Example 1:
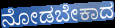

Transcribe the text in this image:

ನೋಡಬೇಕಾದ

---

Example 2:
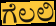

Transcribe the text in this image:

ಗೆಲಲಿ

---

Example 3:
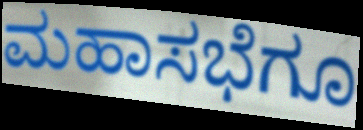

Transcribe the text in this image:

ಮಹಾಸಭೆಗೂ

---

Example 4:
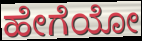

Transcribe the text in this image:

ಹೇಗೆಯೋ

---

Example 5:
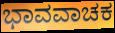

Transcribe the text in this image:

ಭಾವವಾಚಕ